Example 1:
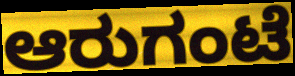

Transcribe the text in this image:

ಆರುಗಂಟೆ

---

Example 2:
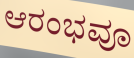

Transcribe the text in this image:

ಆರಂಭವೂ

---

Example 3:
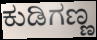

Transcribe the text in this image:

ಕುಡಿಗಣ್ಣ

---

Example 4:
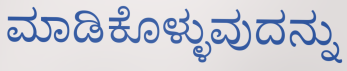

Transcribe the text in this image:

ಮಾಡಿಕೊಳ್ಳುವುದನ್ನು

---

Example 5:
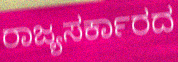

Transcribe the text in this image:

ರಾಜ್ಯಸರ್ಕಾರದ